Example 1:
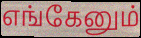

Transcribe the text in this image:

எங்கேனும்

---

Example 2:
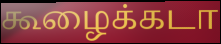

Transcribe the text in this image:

கூழைக்கடா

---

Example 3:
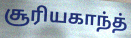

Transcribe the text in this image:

சூரியகாந்த்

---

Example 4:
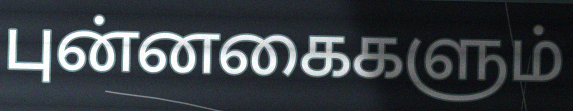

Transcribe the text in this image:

புன்னகைகளும்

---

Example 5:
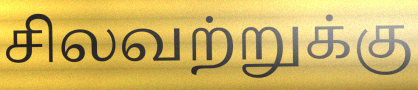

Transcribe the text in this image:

சிலவற்றுக்கு